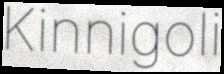
Kinnigoli